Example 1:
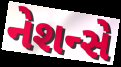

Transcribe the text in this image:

નેશન્સે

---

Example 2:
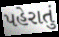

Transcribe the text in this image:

પહેરાતું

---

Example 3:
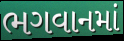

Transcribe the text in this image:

ભગવાનમાં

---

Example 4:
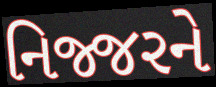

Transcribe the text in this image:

નિજ્જરને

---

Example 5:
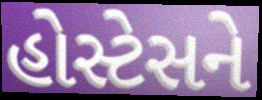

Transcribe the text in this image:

હોસ્ટેસને